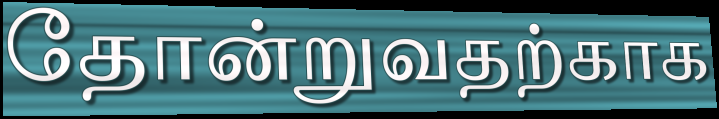
தோன்றுவதற்காக